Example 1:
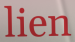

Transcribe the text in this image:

lien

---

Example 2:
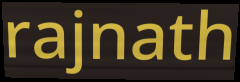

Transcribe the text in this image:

rajnath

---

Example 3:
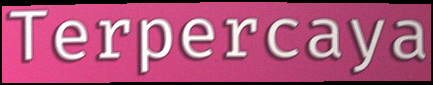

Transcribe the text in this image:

Terpercaya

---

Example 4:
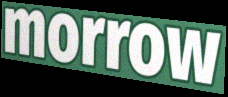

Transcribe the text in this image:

morrow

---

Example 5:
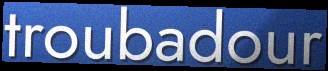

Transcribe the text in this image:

troubadour